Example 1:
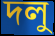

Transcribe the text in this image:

দলু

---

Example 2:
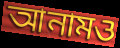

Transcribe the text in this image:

আনামও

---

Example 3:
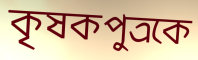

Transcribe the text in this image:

কৃষকপুত্রকে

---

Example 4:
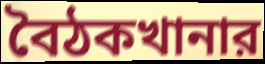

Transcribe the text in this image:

বৈঠকখানার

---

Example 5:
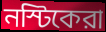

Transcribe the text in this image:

নস্টিকেরা